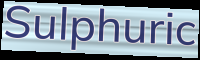
Sulphuric